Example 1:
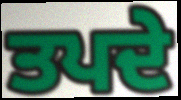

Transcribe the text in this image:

ਤਪਦੇ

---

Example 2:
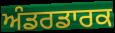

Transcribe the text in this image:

ਅੰਡਰਡਾਰਕ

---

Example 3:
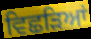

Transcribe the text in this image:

ਵਿਛੜਿਆਂ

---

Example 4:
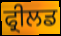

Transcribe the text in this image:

ਫ੍ਰੀਲਡ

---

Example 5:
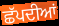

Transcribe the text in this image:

ਛੱਪਦੀਆਂ